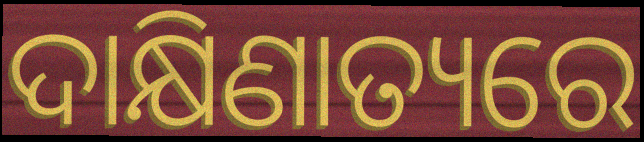
ଦାକ୍ଷିଣାତ୍ୟରେ